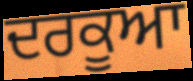
ਦਰਕੂਆ